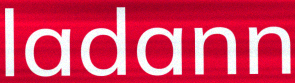
ladann